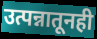
उत्पन्नातूनही